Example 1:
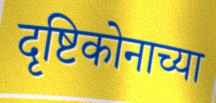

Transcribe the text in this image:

दृष्टिकोनाच्या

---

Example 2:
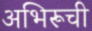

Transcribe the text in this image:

अभिरूची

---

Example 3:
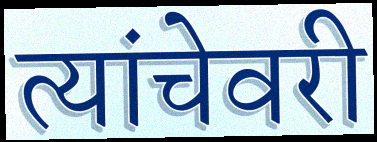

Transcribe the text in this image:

त्यांचेवरी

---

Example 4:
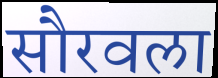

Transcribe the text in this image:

सौरवला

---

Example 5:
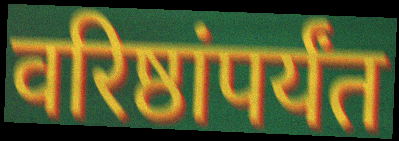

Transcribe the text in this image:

वरिष्ठांपर्यंत